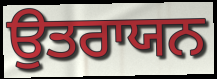
ਉਤਰਾਯਨ